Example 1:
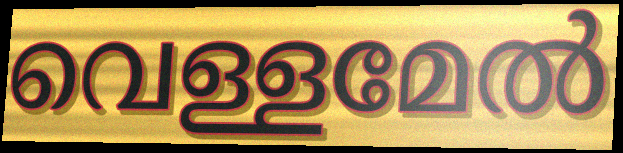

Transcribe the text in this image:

വെള്ളമേൽ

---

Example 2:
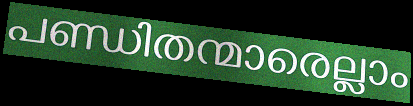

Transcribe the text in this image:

പണ്ഡിതന്മാരെല്ലാം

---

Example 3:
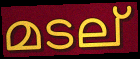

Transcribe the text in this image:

മടല്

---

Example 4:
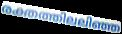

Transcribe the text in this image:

രക്തത്തിലലിഞ്ഞ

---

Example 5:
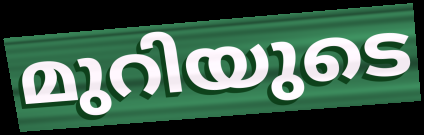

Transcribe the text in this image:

മുറിയുടെ